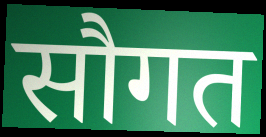
सौगत